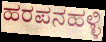
ಹರಪನಹಳ್ಳಿ